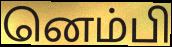
னெம்பி